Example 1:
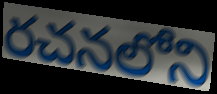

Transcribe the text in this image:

రచనలోని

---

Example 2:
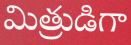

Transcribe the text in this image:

మిత్రుడిగా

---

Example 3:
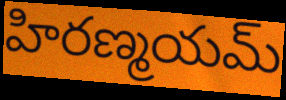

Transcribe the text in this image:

హిరణ్మయమ్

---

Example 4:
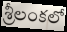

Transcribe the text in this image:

శ్రీలంకలో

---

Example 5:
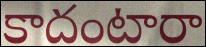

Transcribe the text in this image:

కాదంటారా